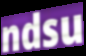
ndsu